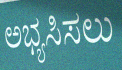
ಅಭ್ಯಸಿಸಲು